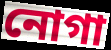
নোগা